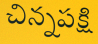
చిన్నపక్షి